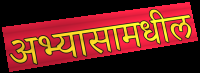
अभ्यासामधील